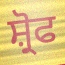
ਸ਼੍ਰੋਫ